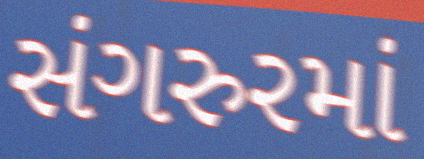
સંગરુરમાં